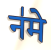
न॑मे